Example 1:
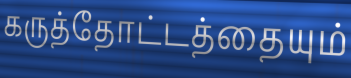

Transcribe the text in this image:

கருத்தோட்டத்தையும்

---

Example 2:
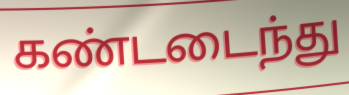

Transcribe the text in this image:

கண்டடைந்து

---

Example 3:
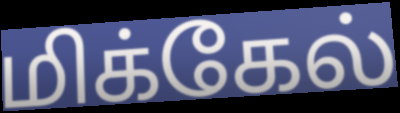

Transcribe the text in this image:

மிக்கேல்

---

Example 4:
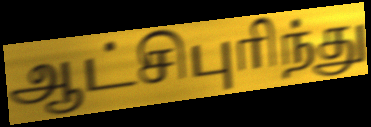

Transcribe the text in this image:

ஆட்சிபுரிந்து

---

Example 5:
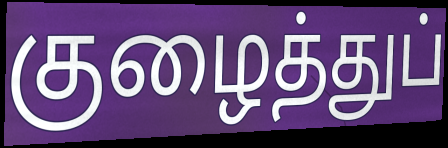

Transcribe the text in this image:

குழைத்துப்